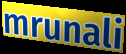
mrunali